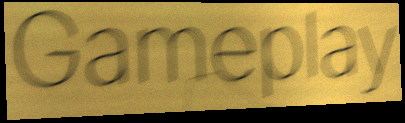
Gameplay